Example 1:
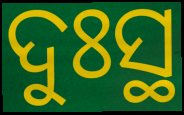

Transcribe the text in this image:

ଦୁଃସ୍ଥ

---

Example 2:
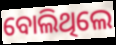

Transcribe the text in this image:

ବୋଲିଥିଲେ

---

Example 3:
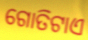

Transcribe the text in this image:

ଗୋତିଟାଏ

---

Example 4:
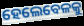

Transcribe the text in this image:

ହେଲେବେଳକୁ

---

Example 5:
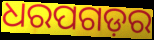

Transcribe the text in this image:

ଧରପଗଡ଼ର